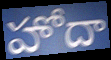
హోదా